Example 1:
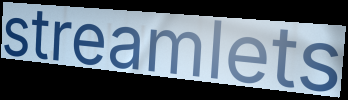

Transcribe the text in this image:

streamlets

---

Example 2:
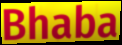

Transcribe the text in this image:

Bhaba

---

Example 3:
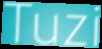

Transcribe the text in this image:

Tuzi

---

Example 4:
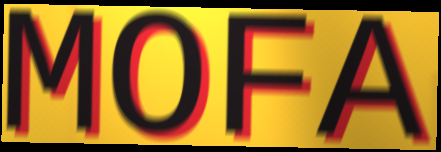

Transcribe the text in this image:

MOFA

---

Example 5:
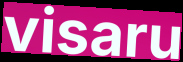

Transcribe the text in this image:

visaru